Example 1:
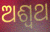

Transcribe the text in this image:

ଅଶ୍ବଥ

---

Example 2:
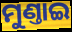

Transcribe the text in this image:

ମୁଣ୍ତାଇ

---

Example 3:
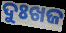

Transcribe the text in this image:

ଦୁଃଖଜ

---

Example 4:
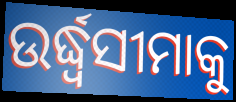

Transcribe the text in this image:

ଉର୍ଦ୍ଧ୍ୱସୀମାକୁ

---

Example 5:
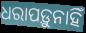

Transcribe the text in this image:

ଧରାପଡ଼ୁନାହିଁ